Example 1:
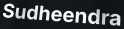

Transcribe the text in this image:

Sudheendra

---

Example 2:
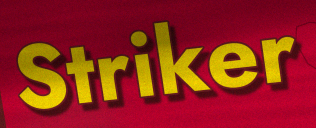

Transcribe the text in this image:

Striker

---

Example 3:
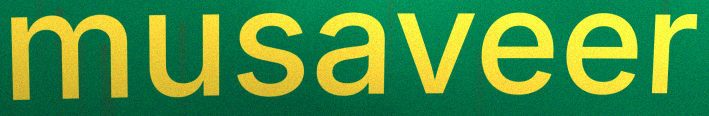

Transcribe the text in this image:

musaveer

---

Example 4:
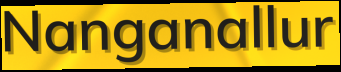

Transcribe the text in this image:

Nanganallur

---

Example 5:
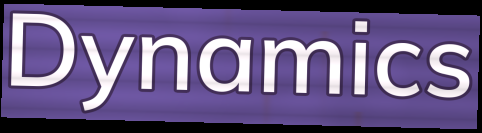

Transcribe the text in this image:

Dynamics